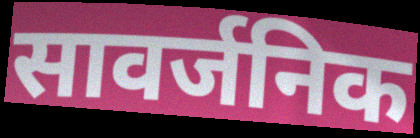
सावर्जनिक